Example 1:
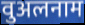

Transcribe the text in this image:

वुअलनाम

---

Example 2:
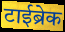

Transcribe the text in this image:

टाईब्रेक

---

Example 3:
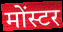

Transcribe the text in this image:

मोंस्टर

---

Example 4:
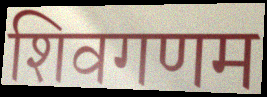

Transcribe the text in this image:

शिवगणम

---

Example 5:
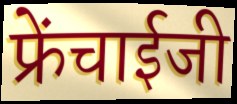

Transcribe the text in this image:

फ्रेंचाईजी